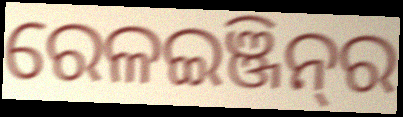
ରେଳଇଞ୍ଜିନ୍‌ର